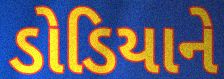
ડોડિયાને